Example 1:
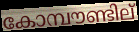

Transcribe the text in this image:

കോമ്പൗണ്ടില്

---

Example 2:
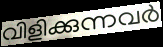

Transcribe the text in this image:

വിളിക്കുന്നവർ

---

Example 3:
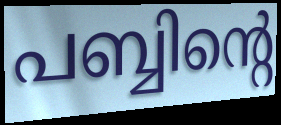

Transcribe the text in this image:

പബ്ബിന്റെ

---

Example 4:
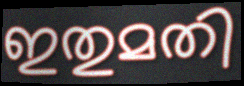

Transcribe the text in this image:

ഇതുമതി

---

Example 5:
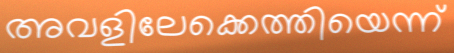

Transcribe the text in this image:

അവളിലേക്കെത്തിയെന്ന്